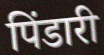
पिंडारी